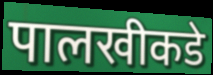
पालखीकडे